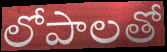
లోపాలతో